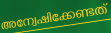
അന്വേഷിക്കേണ്ടത്